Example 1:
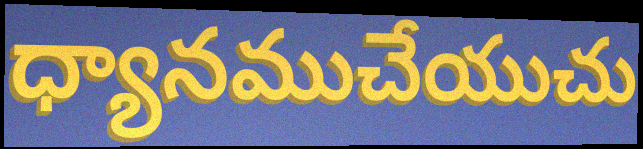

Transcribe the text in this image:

ధ్యానముచేయుచు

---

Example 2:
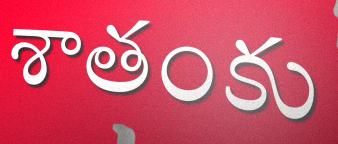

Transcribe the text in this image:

శాతంకు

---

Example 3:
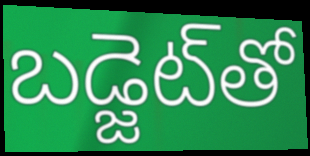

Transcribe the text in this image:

బడ్జెట్‌తో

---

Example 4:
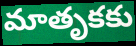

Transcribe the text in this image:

మాతృకకు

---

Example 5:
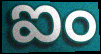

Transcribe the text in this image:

ఐం